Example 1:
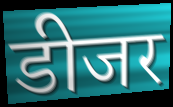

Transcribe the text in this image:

डीजर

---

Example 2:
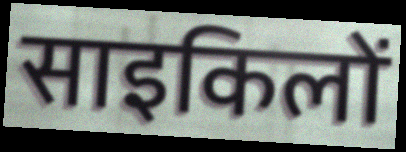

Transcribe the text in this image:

साइकिलों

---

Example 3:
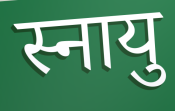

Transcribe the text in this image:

स्नायु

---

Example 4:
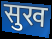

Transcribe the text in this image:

सुख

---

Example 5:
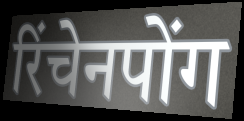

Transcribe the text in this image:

रिंचेनपोंग